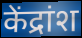
केंद्रांश